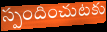
స్పందించుటకు